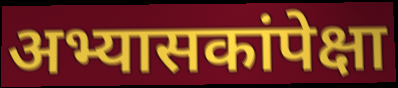
अभ्यासकांपेक्षा